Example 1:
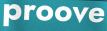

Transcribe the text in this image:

proove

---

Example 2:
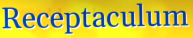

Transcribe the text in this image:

Receptaculum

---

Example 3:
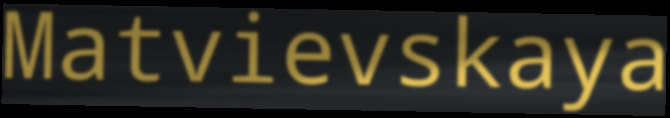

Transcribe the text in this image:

Matvievskaya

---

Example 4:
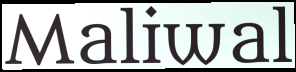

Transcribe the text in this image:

Maliwal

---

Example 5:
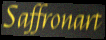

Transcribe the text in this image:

Saffronart